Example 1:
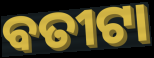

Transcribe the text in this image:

ବତୀଟା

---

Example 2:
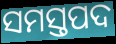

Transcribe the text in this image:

ସମସ୍ତପଦ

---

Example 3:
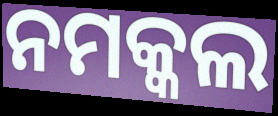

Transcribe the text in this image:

ନମକ୍କଲ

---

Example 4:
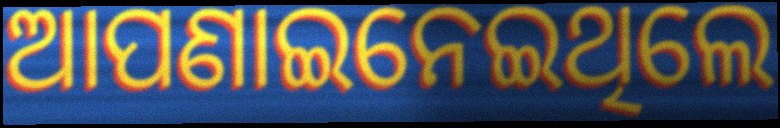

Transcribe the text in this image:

ଆପଣାଇନେଇଥିଲେ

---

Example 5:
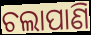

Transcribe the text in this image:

ଚଲାପାଣି